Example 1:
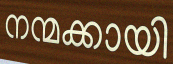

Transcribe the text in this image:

നന്മക്കായി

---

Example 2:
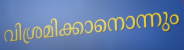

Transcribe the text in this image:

വിശ്രമിക്കാനൊന്നും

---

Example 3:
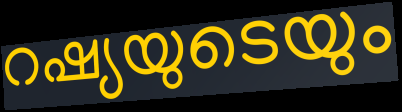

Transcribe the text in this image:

റഷ്യയുടെയും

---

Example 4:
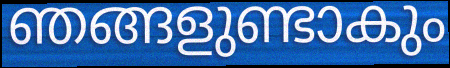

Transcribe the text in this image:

ഞങ്ങളുണ്ടാകും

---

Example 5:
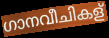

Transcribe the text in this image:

ഗാനവീചികള്